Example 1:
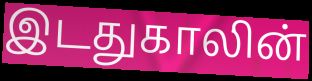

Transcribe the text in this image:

இடதுகாலின்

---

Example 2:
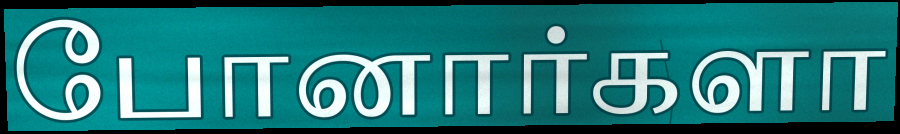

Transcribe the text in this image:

போனார்களா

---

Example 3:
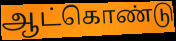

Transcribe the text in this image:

ஆட்கொண்டு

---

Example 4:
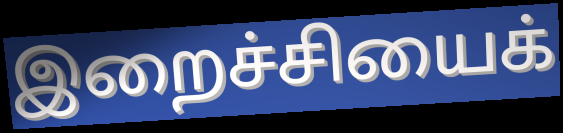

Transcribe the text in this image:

இறைச்சியைக்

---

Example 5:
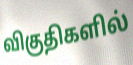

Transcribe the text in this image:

விகுதிகளில்